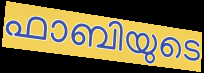
ഫാബിയുടെ